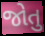
જોતુ